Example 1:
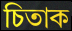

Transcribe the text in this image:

চিতাক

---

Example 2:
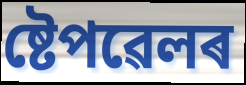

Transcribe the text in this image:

ষ্টেপৱেলৰ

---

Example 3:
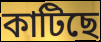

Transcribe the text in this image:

কাটিছে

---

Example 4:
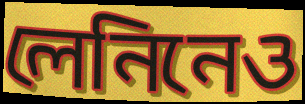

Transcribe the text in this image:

লেনিনেও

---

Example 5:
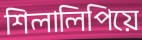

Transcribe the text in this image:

শিলালিপিয়ে